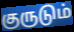
குருடும்